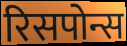
रिसपोन्स